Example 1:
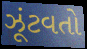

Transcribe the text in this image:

ઝૂંટવતો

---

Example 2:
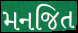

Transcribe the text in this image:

મનજિત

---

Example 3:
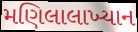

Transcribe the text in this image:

મણિલાલાખ્યાન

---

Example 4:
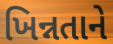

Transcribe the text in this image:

ખિન્નતાને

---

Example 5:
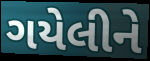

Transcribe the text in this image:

ગયેલીને